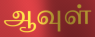
ஆவுள்